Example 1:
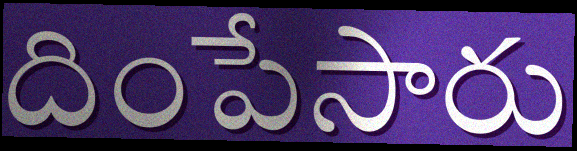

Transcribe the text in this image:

దింపేసారు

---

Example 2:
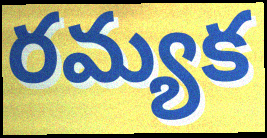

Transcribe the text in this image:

రమ్యక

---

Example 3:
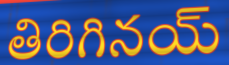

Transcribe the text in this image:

తిరిగినయ్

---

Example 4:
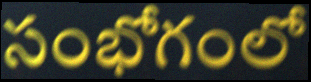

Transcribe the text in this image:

సంభోగంలో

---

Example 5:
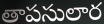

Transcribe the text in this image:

తాపసులార